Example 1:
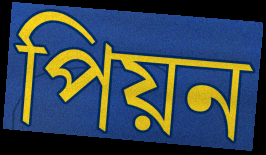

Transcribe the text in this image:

পিয়ন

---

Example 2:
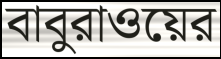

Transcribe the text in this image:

বাবুরাওয়ের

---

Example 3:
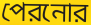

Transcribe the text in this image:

পেরনোর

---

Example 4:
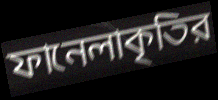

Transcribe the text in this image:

ফানেলাকৃতির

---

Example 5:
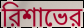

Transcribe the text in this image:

রিশাভের